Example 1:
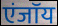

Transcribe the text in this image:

एंजॉय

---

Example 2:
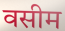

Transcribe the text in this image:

वसीम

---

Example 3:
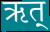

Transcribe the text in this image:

ऋत्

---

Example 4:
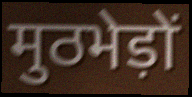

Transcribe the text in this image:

मुठभेड़ों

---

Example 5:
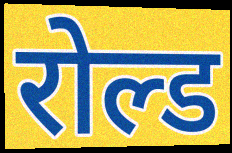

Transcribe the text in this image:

रोल्ड